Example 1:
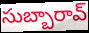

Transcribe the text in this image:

సుబ్బారావ్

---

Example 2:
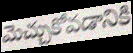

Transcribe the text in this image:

మెచ్చుకోవడానికి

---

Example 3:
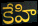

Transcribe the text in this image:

కేహి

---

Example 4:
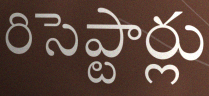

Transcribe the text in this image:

రిసెప్టార్లు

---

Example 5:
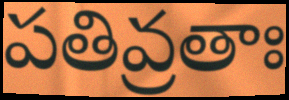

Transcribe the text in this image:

పతివ్రతాః